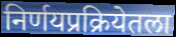
निर्णयप्रक्रियेतला